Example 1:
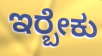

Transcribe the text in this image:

ಇರ‍್ಬೇಕು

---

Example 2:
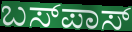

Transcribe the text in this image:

ಬಸ್‍ಪಾಸ್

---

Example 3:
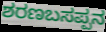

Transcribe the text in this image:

ಶರಣಬಸಪ್ಪನ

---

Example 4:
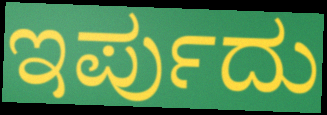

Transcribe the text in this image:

ಇರ್ಪುದು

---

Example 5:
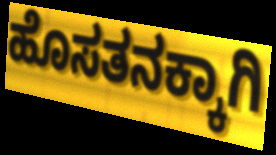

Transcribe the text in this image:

ಹೊಸತನಕ್ಕಾಗಿ